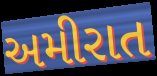
અમીરાત